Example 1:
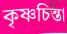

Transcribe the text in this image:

কৃষ্ণচিন্তা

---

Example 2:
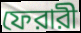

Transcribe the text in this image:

ফেরারী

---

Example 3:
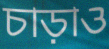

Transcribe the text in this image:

চাড়াও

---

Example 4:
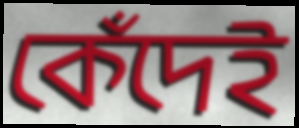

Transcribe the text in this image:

কেঁদেই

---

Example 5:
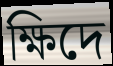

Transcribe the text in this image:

ক্ষিদে